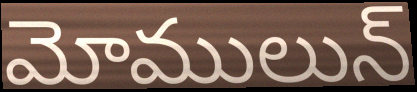
మోములున్